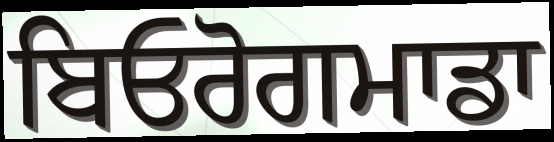
ਬਿਓਰੋਗਮਾਡਾ